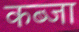
कब्जा